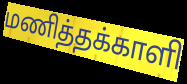
மணித்தக்காளி